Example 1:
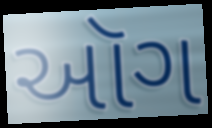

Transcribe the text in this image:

ઑગ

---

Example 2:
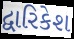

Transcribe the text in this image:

દ્વારિકેશ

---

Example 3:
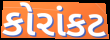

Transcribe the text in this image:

કોરાંકટ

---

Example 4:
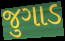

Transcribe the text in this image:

જુગાડ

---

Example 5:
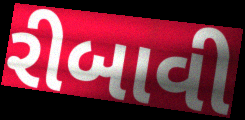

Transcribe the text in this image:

રીબાવી